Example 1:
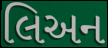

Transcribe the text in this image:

લિઅન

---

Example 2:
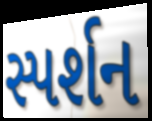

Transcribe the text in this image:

સ્પર્શન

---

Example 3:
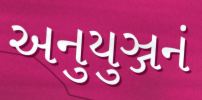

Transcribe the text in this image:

અનુયુઞ્જનં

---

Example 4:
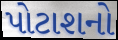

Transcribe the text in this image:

પોટાશનો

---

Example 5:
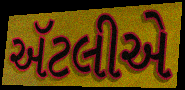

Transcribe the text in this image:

ઍટલીએ